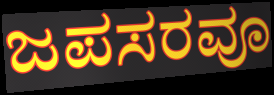
ಜಪಸರವೂ